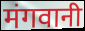
मंगवानी